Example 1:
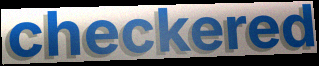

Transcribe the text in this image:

checkered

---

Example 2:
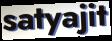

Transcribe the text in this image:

satyajit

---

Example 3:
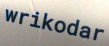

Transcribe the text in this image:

wrikodar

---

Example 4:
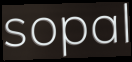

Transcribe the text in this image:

sopal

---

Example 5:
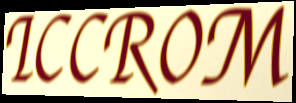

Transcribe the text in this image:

ICCROM